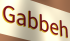
Gabbeh